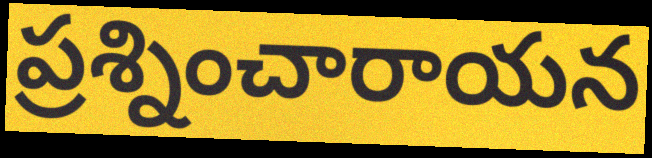
ప్రశ్నించారాయన